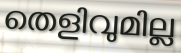
തെളിവുമില്ല